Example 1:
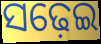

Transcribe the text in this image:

ସଢ଼େଇ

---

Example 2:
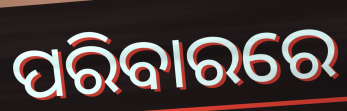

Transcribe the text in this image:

ପରିବାରରେ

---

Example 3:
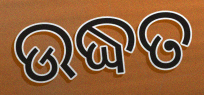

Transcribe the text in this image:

ଉଦ୍ଧତ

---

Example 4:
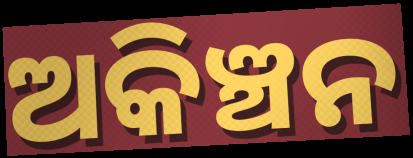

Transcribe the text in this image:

ଅକିଞ୍ଚନ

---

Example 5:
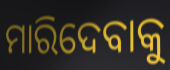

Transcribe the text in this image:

ମାରିଦେବାକୁ